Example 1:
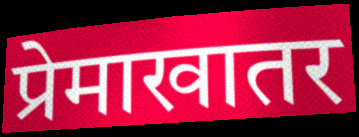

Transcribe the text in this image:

प्रेमाखातर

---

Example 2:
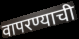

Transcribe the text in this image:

वापरण्याची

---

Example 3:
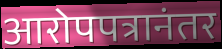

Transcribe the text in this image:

आरोपपत्रानंतर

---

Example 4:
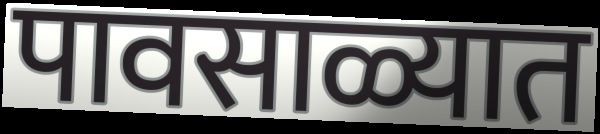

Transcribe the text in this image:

पावसाळ्यात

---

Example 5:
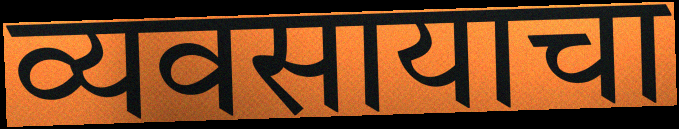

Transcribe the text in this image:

व्यवसायाचा